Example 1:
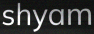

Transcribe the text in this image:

shyam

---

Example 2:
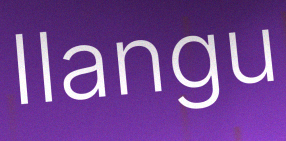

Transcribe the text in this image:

Ilangu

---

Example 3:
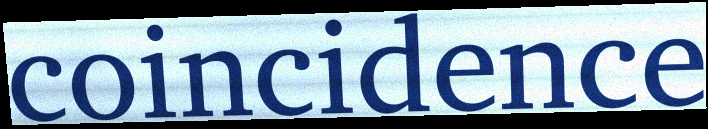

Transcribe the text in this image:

coincidence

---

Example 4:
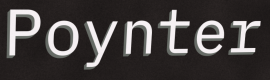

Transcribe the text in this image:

Poynter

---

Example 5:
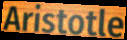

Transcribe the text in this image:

Aristotle